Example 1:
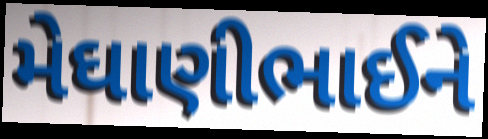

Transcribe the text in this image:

મેઘાણીભાઈને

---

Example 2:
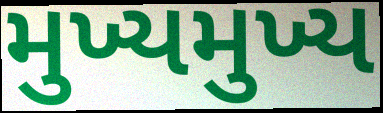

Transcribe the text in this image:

મુખ્યમુખ્ય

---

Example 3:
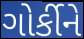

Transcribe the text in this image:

ગોર્કીને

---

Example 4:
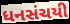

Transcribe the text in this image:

ધનસંચયી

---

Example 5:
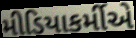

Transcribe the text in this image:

મીડિયાકર્મીએ